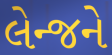
લેન્જને